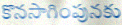
కొనసాగింపునకు